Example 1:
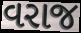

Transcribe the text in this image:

વરાજ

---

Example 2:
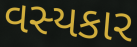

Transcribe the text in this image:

વસ્યકાર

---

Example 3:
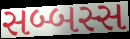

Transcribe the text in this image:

સબ્બસ્સ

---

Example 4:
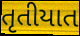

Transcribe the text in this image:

તૃતીયાત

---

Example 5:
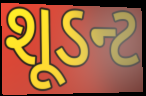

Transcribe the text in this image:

શૂડન્ટ